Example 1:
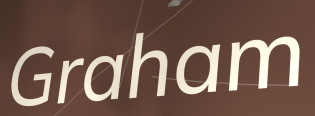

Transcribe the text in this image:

Graham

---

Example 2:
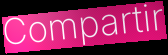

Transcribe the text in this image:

Compartir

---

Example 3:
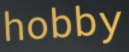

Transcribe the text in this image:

hobby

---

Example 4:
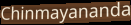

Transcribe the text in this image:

Chinmayananda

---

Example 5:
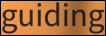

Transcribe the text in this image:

guiding